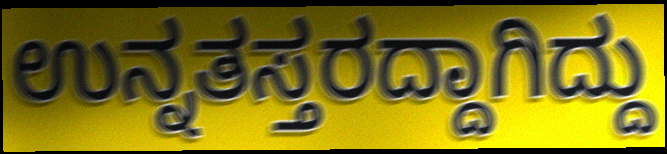
ಉನ್ನತಸ್ತರದ್ದಾಗಿದ್ದು